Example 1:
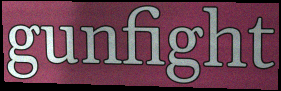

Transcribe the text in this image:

gunfight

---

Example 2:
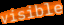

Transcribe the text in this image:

visible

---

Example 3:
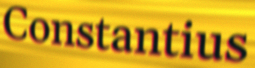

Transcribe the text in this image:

Constantius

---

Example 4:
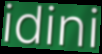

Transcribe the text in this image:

idini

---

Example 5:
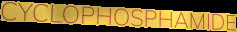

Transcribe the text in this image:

CYCLOPHOSPHAMIDE